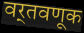
वर्तवणूक